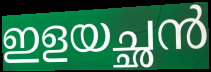
ഇളയച്ഛൻ